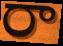
రా